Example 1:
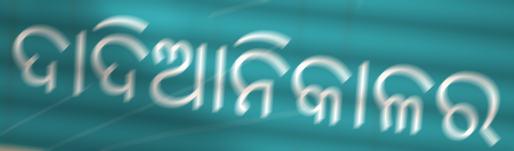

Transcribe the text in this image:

ଦାଦିଆନିକାଳର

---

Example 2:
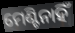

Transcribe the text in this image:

ମେଣ୍ଟିନାହିଁ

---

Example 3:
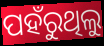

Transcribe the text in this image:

ପହଁରୁଥିଲୁ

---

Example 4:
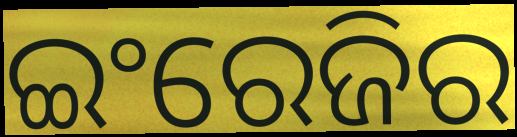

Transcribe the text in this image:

ଇଂରେଜିର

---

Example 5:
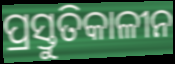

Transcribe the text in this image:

ପ୍ରସ୍ତୁତିକାଳୀନ